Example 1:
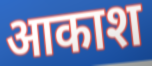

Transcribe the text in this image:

आकाश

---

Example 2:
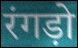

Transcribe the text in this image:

रंगड़ो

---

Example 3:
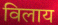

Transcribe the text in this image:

विलाय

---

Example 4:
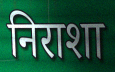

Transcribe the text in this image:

निराशा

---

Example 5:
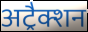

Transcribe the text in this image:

अट्रैक्शन